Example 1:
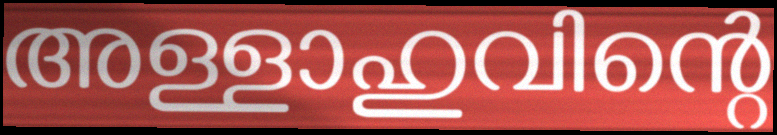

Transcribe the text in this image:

അള്ളാഹുവിന്റെ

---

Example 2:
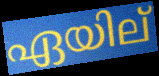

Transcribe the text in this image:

ഏയില്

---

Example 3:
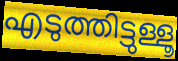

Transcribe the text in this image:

എടുത്തിട്ടുള്ളൂ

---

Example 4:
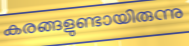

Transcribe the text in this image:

കരങ്ങളുണ്ടായിരുന്നു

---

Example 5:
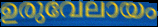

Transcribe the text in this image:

ഉരുവേലായം